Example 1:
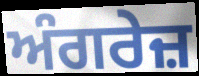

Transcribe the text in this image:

ਅੰਗਰੇਜ਼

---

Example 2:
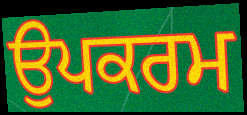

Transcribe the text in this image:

ਉਪਕਰਮ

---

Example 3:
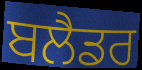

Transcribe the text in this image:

ਬਲੈਡਰ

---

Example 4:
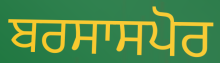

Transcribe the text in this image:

ਬਰਸਾਸਪੋਰ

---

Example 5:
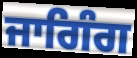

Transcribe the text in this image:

ਜਾਗਿੰਗ